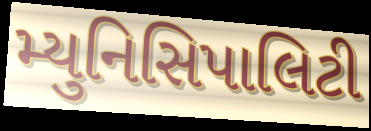
મ્યુનિસિપાલિટી